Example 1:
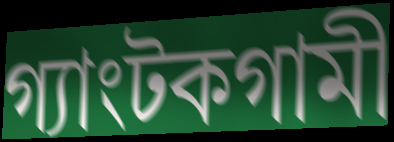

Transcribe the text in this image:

গ্যাংটকগামী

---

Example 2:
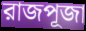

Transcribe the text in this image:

রাজপূজা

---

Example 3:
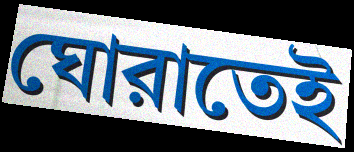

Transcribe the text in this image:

ঘোরাতেই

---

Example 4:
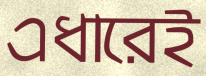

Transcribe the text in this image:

এধারেই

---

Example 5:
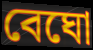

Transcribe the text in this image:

বেঘো